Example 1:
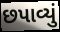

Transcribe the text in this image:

છપાવ્યું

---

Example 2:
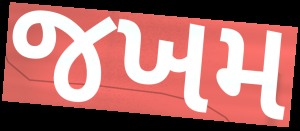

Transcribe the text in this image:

જખમ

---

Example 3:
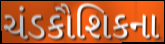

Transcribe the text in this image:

ચંડકૌશિકના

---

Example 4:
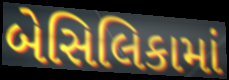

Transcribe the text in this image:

બેસિલિકામાં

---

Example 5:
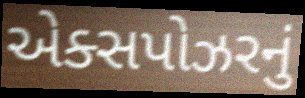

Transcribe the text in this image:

એક્સપોઝરનું